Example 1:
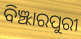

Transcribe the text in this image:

ବିଞ୍ଝାରପୁରୀ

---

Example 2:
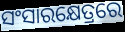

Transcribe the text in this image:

ସଂସାରକ୍ଷେତ୍ରରେ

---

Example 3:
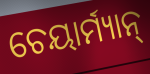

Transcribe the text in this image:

ଚେୟାର୍ମ୍ୟାନ୍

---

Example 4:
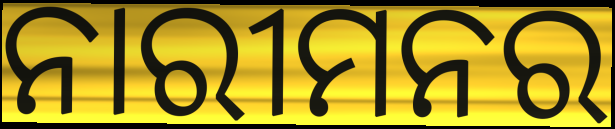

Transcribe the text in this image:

ନାରୀମନର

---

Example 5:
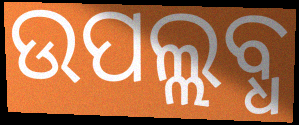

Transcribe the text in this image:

ଉପଲ୍ଲବ୍ଧ